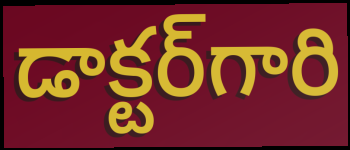
డాక్టర్‌గారి